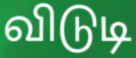
விடுடி